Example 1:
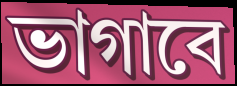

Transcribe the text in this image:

ভাগাবে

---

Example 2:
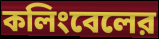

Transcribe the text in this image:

কলিংবেলের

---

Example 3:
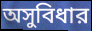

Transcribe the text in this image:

অসুবিধার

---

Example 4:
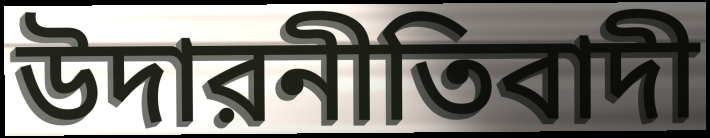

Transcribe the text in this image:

উদারনীতিবাদী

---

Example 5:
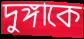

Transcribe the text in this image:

দুঙ্গাকে